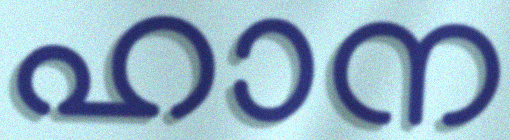
ഹാന